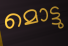
മൊട്ടു